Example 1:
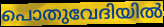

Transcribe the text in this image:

പൊതുവേദിയിൽ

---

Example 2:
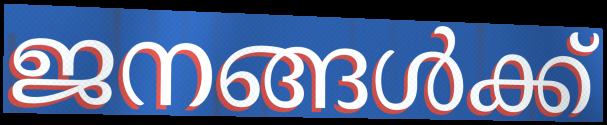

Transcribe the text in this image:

ജനങ്ങൾക്ക്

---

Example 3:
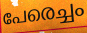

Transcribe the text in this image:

പേരെച്ചം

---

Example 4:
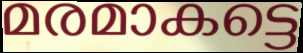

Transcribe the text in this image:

മരമാകട്ടെ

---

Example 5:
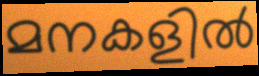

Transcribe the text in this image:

മനകളിൽ